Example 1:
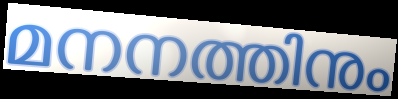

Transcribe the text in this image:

മനനത്തിനും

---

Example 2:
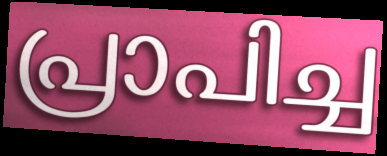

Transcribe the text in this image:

പ്രാപിച്ച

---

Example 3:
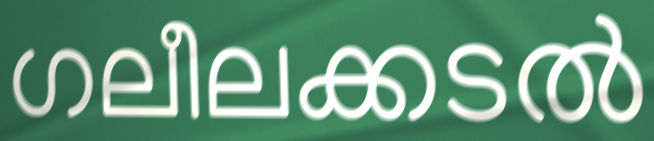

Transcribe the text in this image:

ഗലീലക്കടൽ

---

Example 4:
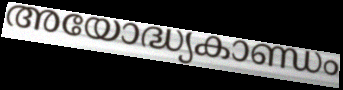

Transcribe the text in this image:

അയോദ്ധ്യകാണ്ഡം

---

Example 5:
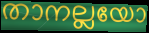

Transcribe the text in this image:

താനല്ലയോ